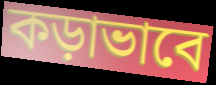
কড়াভাবে